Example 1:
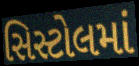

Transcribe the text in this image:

સિસ્ટોલમાં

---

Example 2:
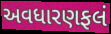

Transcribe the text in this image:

અવધારણફલં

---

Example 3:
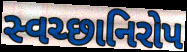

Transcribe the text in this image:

સ્વચ્છાનિરોપ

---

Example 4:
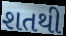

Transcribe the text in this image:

શતથી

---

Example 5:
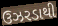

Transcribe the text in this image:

ઉઝરડાથી